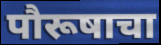
पौरूषाचा